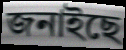
জনাইছে